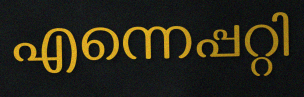
എന്നെപ്പറ്റി